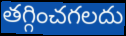
తగ్గించగలదు